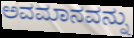
ಅವಮಾನವನ್ನು